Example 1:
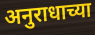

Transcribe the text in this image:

अनुराधाच्या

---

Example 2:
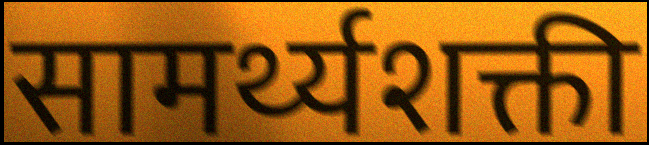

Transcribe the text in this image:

सामर्थ्यशक्ती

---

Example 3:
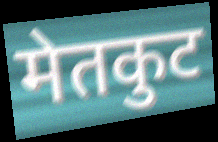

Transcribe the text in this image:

मेतकुट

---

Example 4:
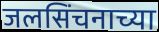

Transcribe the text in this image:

जलसिंचनाच्या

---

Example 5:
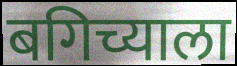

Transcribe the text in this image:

बगिच्याला